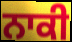
ਨਾਕੀ